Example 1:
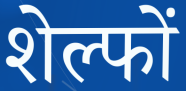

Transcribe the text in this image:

शेल्फों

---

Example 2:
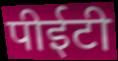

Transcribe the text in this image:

पीईटी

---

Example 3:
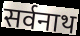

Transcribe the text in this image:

सर्वनाथ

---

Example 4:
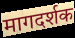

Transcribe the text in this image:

मागदर्शक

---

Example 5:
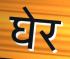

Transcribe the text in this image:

घेर